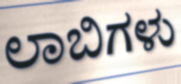
ಲಾಬಿಗಳು